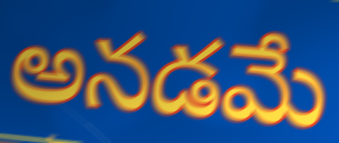
అనడమే